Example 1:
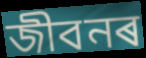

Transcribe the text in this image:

জীবনৰ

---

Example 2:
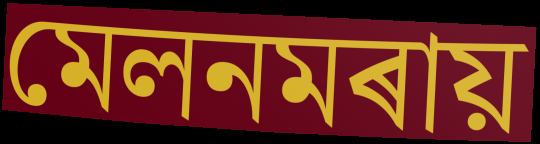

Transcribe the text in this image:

মেলনমৰায়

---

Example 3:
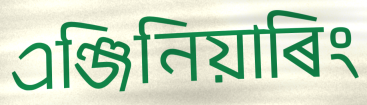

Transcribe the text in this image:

এঞ্জিনিয়াৰিং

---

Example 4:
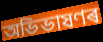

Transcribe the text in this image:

অভিভাষণৰ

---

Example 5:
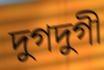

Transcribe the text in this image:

দুগদুগী